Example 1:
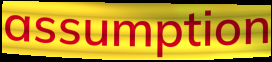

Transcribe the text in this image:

assumption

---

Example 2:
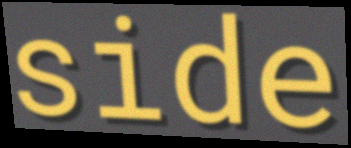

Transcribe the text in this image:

side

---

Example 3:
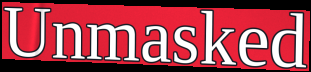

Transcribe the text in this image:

Unmasked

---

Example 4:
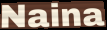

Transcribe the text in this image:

Naina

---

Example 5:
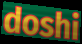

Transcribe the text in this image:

doshi